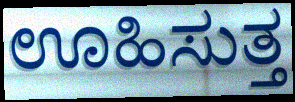
ಊಹಿಸುತ್ತ